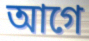
আগে